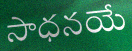
సాధనయే